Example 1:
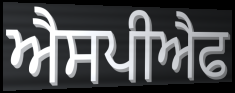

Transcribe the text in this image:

ਐਸਪੀਐਫ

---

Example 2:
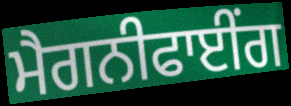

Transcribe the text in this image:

ਮੈਗਨੀਫਾਈਂਗ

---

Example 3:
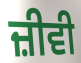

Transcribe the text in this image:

ਜ਼ੀਵੀ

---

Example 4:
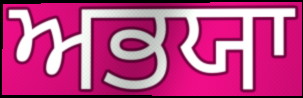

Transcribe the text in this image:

ਅਭਯਾ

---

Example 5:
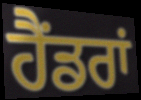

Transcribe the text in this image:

ਹੈਂਡਰਾਂ